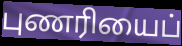
புணரியைப்